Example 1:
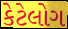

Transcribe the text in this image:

કેટેલોગ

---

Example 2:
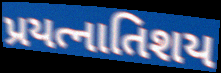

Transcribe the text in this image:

પ્રયત્નાતિશય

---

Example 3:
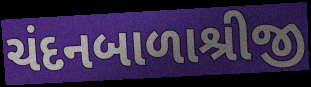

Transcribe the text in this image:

ચંદનબાળાશ્રીજી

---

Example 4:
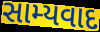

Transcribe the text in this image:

સામ્યવાદ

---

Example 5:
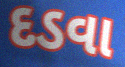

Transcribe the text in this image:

દડવા